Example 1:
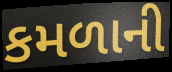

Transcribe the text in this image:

કમળાની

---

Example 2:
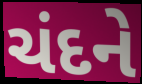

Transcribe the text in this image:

ચંદને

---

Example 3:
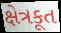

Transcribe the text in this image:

ક્ષેત્રકૂત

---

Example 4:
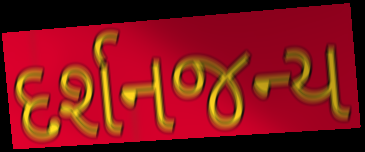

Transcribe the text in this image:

દર્શનજન્ય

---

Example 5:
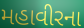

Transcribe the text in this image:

મહાવીરના